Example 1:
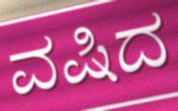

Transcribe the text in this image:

ವಷಿದ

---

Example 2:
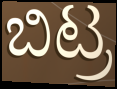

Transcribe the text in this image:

ಬಿಟ್ರ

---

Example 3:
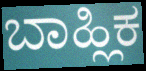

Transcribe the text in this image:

ಬಾಹ್ಲಿಕ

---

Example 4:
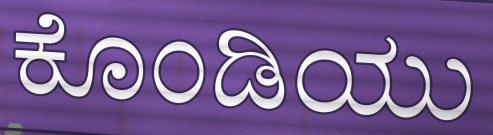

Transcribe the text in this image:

ಕೊಂಡಿಯು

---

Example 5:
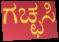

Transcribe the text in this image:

ಗಚ್ಛಸಿ